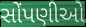
સોંપણીઓ